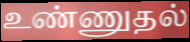
உண்ணுதல்